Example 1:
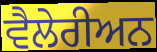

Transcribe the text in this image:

ਵੈਲੇਰੀਅਨ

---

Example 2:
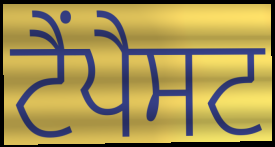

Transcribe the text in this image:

ਟੈਂਪੈਸਟ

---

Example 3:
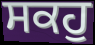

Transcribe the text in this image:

ਸਕਹੁ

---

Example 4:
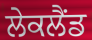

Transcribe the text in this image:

ਲੇਕਲੈਂਡ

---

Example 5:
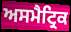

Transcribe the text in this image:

ਅਸਮੈਟ੍ਰਿਕ